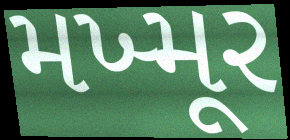
મખ્મૂર